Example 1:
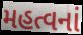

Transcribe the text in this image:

મહત્વનાં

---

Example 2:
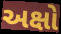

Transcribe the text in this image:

અક્ષો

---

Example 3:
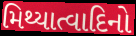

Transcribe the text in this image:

મિથ્યાત્વાદિનો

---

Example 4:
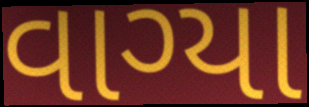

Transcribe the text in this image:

વાગ્યા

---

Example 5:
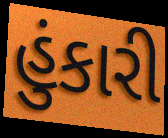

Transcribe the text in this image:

હુંકારી